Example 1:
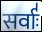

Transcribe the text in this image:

सर्वाः॑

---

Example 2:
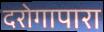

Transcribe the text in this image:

दरोगापारा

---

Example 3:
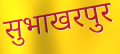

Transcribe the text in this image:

सुभाखरपुर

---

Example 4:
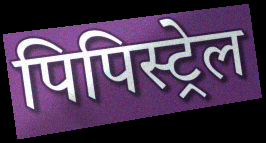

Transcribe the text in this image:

पिपिस्ट्रेल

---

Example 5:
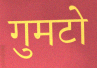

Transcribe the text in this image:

गुमटो